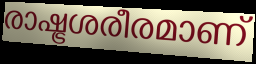
രാഷ്ട്രശരീരമാണ്